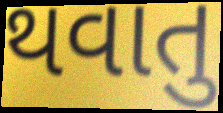
થવાતુ